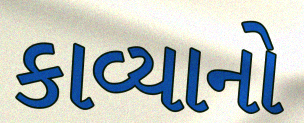
કાવ્યાનો